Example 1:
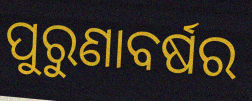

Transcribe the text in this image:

ପୁରୁଣାବର୍ଷର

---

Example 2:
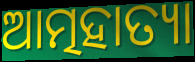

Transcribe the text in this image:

ଆତ୍ମହାତ୍ୟା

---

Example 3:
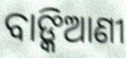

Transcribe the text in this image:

ବାଙ୍କିଆଣୀ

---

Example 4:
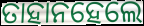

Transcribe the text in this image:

ତାହାନହେଲେ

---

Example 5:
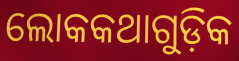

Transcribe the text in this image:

ଲୋକକଥାଗୁଡ଼ିକ